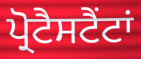
ਪ੍ਰੋਟੈਸਟੈਂਟਾਂ